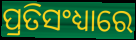
ପ୍ରତିସଂଧ୍ୟାରେ